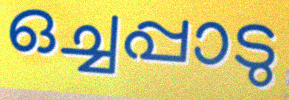
ഒച്ചപ്പാടു